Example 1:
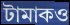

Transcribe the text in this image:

টামাকও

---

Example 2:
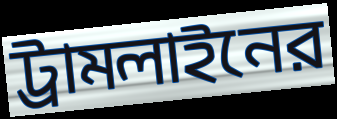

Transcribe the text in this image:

ট্রামলাইনের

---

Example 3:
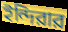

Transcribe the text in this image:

ইন্দিরার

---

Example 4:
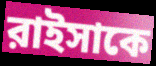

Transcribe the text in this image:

রাইসাকে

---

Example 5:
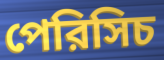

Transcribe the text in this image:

পেরিসিচ